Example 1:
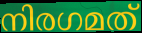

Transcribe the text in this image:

നിരഗമത്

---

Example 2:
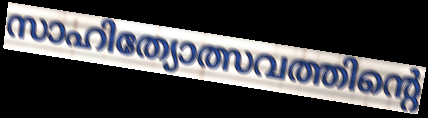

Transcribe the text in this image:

സാഹിത്യോത്സവത്തിന്റെ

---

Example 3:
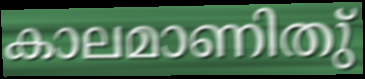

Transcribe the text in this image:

കാലമാണിതു്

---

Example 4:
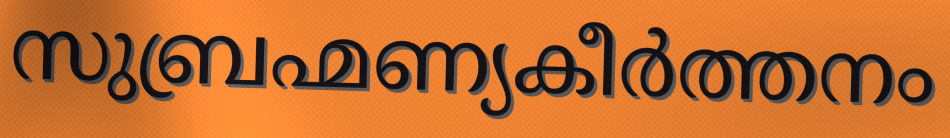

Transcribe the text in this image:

സുബ്രഹ്മണ്യകീർത്തനം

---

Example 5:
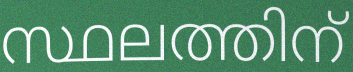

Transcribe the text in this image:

സ്ഥലത്തിന്